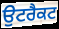
ਉਟਰੈਕਟ